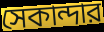
সেকান্দার